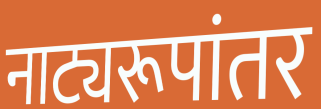
नाट्यरूपांतर